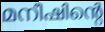
മനീഷിന്റെ